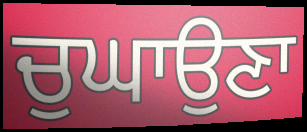
ਚੁਘਾਉਣਾ